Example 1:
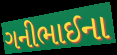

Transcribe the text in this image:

ગનીભાઈના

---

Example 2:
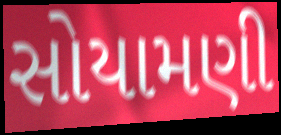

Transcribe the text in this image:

સોયામણી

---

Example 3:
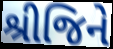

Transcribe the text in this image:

શ્રીજિને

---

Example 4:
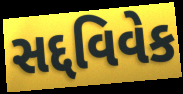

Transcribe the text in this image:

સદ્દવિવેક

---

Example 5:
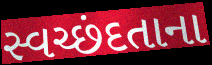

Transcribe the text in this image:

સ્વચ્છંદતાના